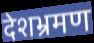
देशभ्रमण